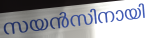
സയൻസിനായി